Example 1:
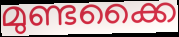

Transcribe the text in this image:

മുണ്ടക്കൈ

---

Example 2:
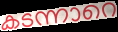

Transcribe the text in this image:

കടന്നാറെ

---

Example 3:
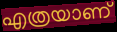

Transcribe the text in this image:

എത്രയാണ്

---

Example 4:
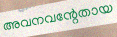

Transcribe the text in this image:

അവനവന്റേതായ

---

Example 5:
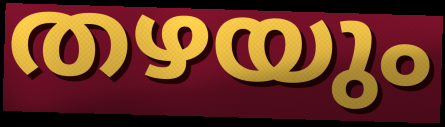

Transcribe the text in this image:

തഴയും